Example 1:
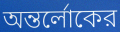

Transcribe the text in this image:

অন্তর্লোকের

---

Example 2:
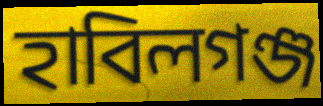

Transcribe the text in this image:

হাবিলগঞ্জ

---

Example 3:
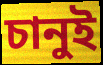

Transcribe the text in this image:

চানুই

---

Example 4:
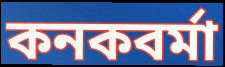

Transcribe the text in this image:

কনকবর্মা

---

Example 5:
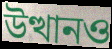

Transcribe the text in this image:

উত্থানও